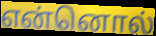
என்னொல்